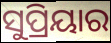
ସୁପ୍ରିୟାର